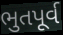
ભુતપૂર્વ